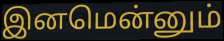
இனமென்னும்